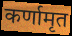
कर्णामृत